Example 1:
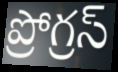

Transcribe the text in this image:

ప్రోగ్రస్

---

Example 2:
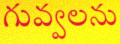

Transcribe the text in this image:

గువ్వలను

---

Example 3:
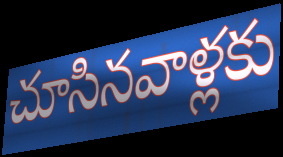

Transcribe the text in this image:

చూసినవాళ్లకు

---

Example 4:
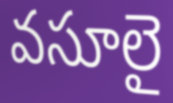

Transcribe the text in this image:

వసూలై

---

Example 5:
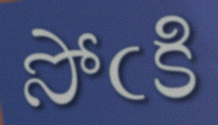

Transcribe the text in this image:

సోఁకి